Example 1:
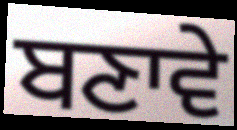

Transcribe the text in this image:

ਬਣਾਵੇ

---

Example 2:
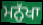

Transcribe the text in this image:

ਮਨੁੱਖਾ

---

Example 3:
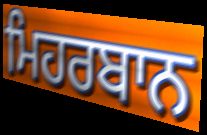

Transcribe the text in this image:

ਮਿਹਰਬਾਨ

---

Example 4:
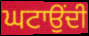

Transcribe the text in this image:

ਘਟਾਉਂਦੀ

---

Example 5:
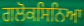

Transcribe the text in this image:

ਗਲੋਕਸਿਨਿਆ